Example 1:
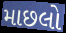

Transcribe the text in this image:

માછલો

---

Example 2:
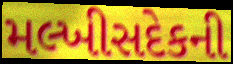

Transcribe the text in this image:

મલ્ખીસદેકની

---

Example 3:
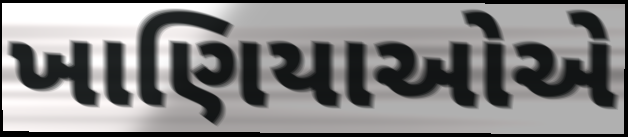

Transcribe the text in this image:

ખાણિયાઓએ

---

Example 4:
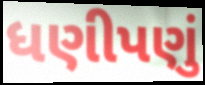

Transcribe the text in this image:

ધણીપણું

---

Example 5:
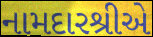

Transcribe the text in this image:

નામદારશ્રીએ